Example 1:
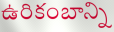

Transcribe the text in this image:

ఉరికంబాన్ని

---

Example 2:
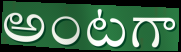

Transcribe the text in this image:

అంటగా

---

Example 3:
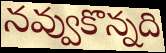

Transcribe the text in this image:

నవ్వుకొన్నది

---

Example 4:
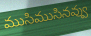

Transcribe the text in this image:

ముసిముసినవ్వు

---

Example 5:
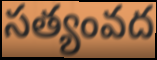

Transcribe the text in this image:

సత్యంవద